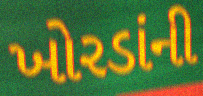
ખોરડાંની